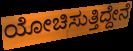
ಯೋಚಿಸುತ್ತಿದ್ದೇನೆ